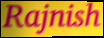
Rajnish